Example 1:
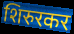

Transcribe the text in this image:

शिरुरकर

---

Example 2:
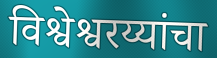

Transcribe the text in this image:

विश्वेश्वरय्यांचा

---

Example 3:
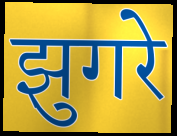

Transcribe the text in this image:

झुगरे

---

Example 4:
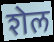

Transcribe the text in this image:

शेल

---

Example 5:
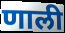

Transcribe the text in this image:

णाली